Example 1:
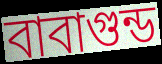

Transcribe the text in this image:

বাবাগুন্ড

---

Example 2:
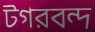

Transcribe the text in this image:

টগরবন্দ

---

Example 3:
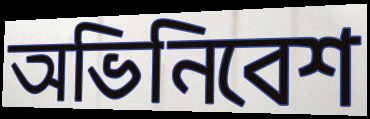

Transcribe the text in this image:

অভিনিবেশ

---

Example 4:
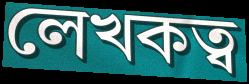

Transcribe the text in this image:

লেখকত্ব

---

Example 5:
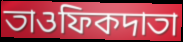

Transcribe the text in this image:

তাওফিকদাতা